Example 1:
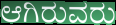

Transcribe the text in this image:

ಆಗಿರುವರು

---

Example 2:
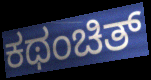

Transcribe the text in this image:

ಕಥಂಚಿತ್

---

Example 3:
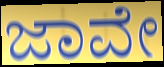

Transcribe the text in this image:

ಜಾವೇ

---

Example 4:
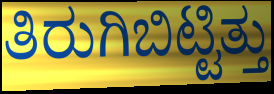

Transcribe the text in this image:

ತಿರುಗಿಬಿಟ್ಟಿತ್ತು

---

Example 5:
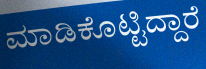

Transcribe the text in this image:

ಮಾಡಿಕೊಟ್ಟಿದ್ದಾರೆ